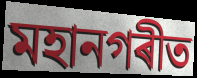
মহানগৰীত